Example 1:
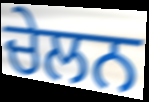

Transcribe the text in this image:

ਚੇਲਨ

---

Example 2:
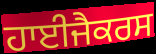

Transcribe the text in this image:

ਹਾਈਜੈਕਰਸ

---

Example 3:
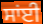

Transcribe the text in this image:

ਸਾਂਈ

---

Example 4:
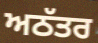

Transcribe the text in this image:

ਅਠੱਤਰ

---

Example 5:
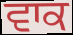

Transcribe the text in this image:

ਵਾਕ